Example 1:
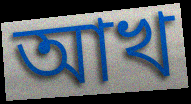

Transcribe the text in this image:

আখ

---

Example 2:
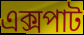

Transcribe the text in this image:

এক্সপাট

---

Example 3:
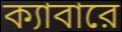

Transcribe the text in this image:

ক্যাবারে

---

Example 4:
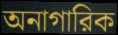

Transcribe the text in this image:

অনাগারিক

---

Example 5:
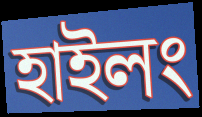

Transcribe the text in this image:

হাইলং